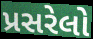
પ્રસરેલો